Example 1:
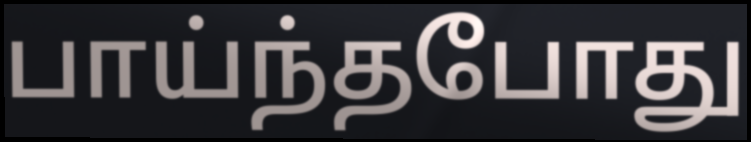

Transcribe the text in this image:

பாய்ந்தபோது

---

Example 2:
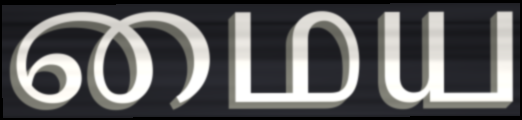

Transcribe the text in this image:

மைய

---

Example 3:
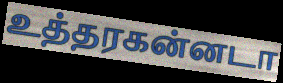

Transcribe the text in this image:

உத்தரகன்னடா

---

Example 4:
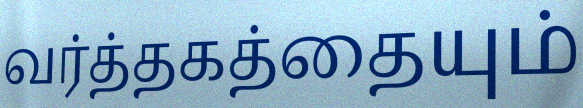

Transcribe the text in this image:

வர்த்தகத்தையும்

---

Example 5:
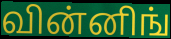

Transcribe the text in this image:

வின்னிங்